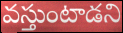
వస్తుంటాడని